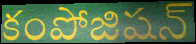
కంపోజిషన్